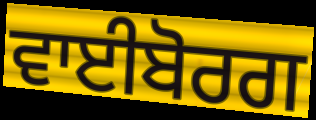
ਵਾਈਬੋਰਗ